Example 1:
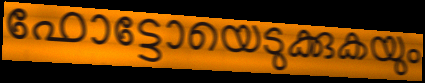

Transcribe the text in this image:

ഫോട്ടോയെടുക്കുകയും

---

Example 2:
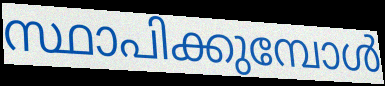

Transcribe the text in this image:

സ്ഥാപിക്കുമ്പോൾ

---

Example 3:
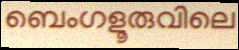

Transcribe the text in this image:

ബെംഗളൂരുവിലെ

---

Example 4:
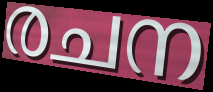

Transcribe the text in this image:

രചന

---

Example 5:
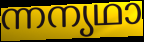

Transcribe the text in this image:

ന്നന്യഥാ